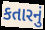
કતારનું